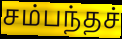
சம்பந்தச்